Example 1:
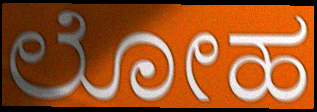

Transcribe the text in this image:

ಲೋಹ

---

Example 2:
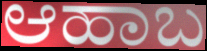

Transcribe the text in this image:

ಆಹಾಬ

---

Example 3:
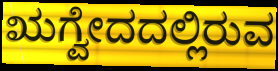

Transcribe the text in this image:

ಋಗ್ವೇದದಲ್ಲಿರುವ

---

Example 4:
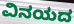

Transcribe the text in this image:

ವಿನಯದ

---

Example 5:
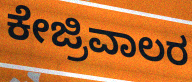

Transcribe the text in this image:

ಕೇಜ್ರಿವಾಲರ